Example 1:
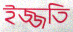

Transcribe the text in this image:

ইজ্জতি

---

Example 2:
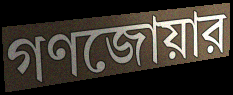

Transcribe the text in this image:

গণজোয়ার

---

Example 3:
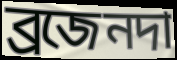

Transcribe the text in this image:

ব্রজেনদা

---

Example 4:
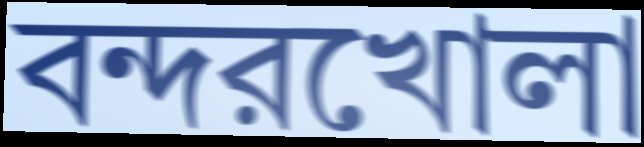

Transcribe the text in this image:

বন্দরখোলা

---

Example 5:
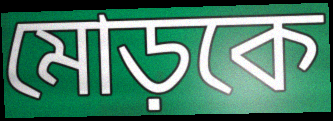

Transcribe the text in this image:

মোড়কে